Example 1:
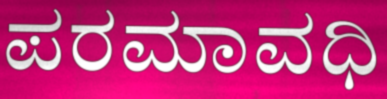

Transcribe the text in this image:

ಪರಮಾವಧಿ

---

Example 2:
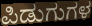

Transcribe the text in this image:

ಪಿಡುಗುಗಳ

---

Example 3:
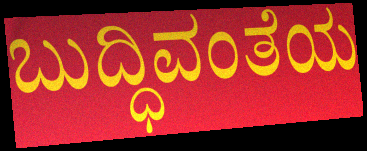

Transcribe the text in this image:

ಬುದ್ಧಿವಂತೆಯ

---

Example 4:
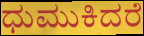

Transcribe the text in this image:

ಧುಮುಕಿದರೆ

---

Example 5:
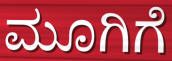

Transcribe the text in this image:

ಮೂಗಿಗೆ